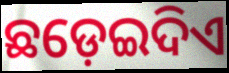
ଛଡ଼େଇଦିଏ